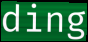
ding